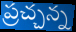
ప్రచ్చన్న